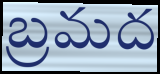
బ్రమద